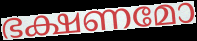
ഭക്ഷണമോ